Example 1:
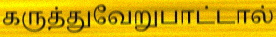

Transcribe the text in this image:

கருத்துவேறுபாட்டால்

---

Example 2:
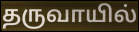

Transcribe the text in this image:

தருவாயில்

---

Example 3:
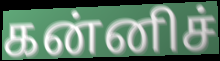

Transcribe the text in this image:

கன்னிச்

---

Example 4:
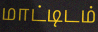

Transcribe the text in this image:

மாட்டிடம்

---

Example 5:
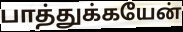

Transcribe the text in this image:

பாத்துக்கயேன்